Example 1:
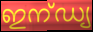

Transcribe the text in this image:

ഇന്ഡ്യ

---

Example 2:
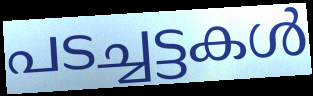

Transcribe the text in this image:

പടച്ചട്ടകൾ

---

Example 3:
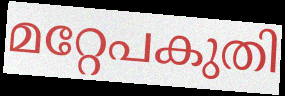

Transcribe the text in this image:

മറ്റേപകുതി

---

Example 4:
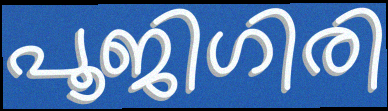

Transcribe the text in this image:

പൂജിഗിരി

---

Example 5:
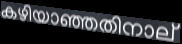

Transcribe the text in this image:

കഴിയാഞ്ഞതിനാല്